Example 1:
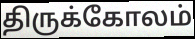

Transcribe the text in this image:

திருக்கோலம்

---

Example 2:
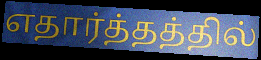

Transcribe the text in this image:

எதார்த்தத்தில்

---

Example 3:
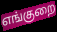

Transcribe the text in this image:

எங்குறை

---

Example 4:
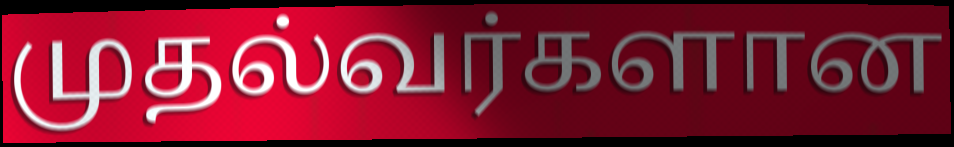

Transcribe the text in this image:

முதல்வர்களான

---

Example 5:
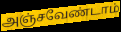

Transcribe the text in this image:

அஞ்சவேண்டாம்